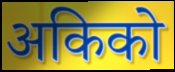
अकिको